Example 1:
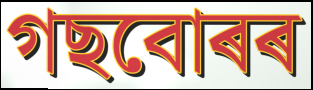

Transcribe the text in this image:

গছবোৰৰ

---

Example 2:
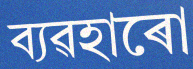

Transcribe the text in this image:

ব্যৱহাৰো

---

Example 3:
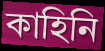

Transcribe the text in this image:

কাহিনি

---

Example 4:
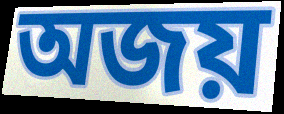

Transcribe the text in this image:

অজয়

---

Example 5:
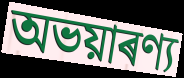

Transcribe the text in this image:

অভয়াৰণ্য